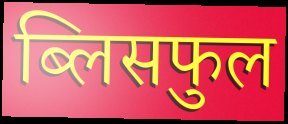
ब्लिसफुल